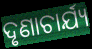
ଦୃଣାଚାର୍ଯ୍ୟ